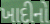
ખાદીનો